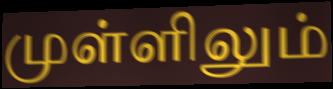
முள்ளிலும்